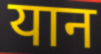
यान